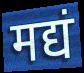
मद्यं